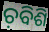
ଚ଼ବିଶି